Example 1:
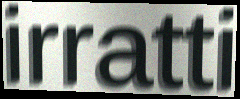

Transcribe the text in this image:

irratti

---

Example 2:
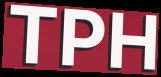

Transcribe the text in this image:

TPH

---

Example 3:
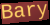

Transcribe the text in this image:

Bary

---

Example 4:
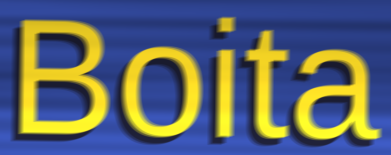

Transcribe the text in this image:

Boita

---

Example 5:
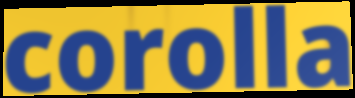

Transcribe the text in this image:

corolla